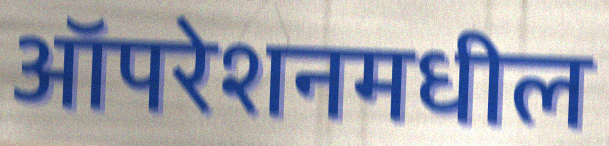
ऑपरेशनमधील